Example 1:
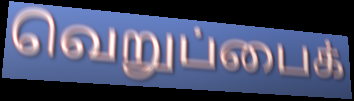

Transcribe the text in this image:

வெறுப்பைக்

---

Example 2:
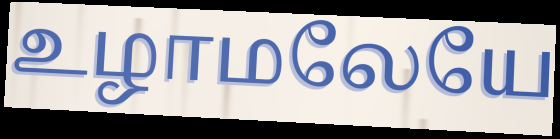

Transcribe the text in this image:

உழாமலேயே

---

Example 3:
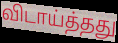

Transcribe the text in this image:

விடாய்த்தது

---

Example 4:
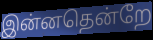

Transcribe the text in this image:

இன்னதென்றே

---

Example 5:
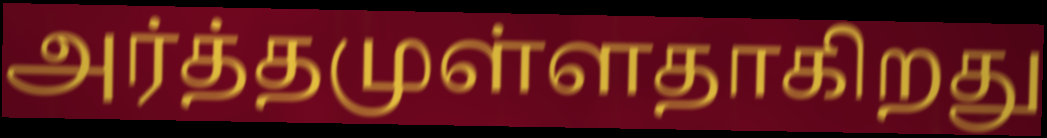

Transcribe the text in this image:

அர்த்தமுள்ளதாகிறது